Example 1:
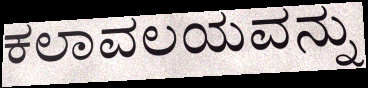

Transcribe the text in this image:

ಕಲಾವಲಯವನ್ನು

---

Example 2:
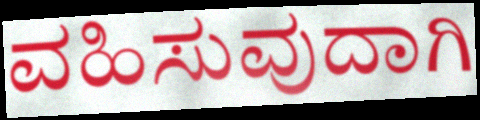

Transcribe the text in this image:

ವಹಿಸುವುದಾಗಿ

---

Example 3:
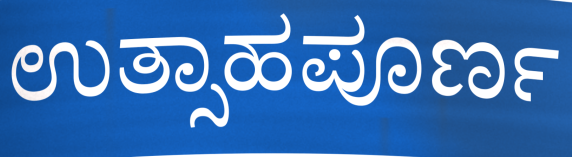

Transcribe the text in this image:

ಉತ್ಸಾಹಪೂರ್ಣ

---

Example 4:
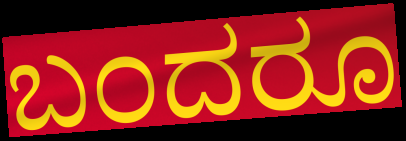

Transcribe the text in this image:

ಬಂದರೂ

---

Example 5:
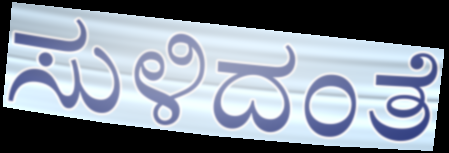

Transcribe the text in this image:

ಸುಳಿದಂತೆ